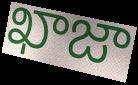
ఖాజా